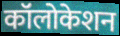
कॉलोकेशन